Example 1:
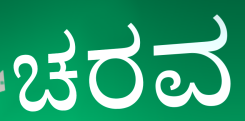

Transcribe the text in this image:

ಚರವ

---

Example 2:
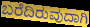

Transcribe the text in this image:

ಬರೆದಿರುವುದಾಗಿ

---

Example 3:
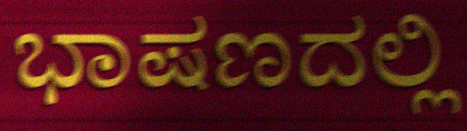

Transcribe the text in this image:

ಭಾಷಣದಲ್ಲಿ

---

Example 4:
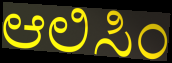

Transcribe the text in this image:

ಆಲಿಸಿಂ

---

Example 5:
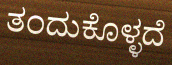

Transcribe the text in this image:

ತಂದುಕೊಳ್ಳದೆ